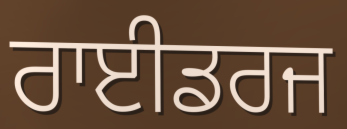
ਰਾਈਡਰਜ